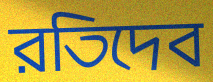
রতিদেব